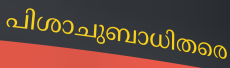
പിശാചുബാധിതരെ